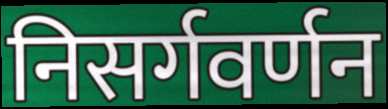
निसर्गवर्णन